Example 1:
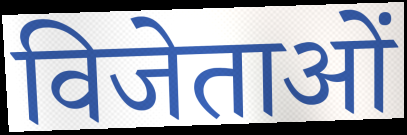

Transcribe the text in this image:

विजेताओं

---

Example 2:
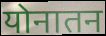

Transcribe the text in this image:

योनातन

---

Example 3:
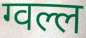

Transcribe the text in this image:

ग्वल्ल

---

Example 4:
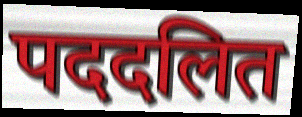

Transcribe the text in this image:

पददलित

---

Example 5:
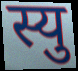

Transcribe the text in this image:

स्यु